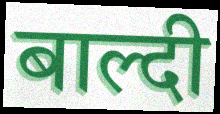
बाल्दी